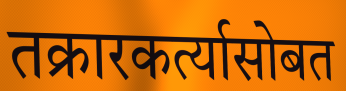
तक्रारकर्त्यासोबत